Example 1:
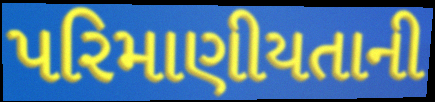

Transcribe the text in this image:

પરિમાણીયતાની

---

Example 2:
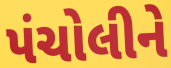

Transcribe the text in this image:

પંચોલીને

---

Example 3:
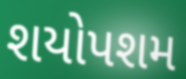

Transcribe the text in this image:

શયોપશમ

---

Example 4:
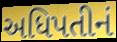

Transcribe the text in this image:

અધિપતીનં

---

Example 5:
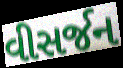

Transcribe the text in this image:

વીસર્જન